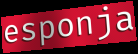
esponja